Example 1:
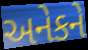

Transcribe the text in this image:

અનેકને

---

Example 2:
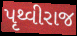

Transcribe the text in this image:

પૃથ્વીરાજ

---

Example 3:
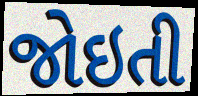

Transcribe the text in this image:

જોઇતી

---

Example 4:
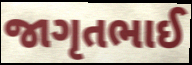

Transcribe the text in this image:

જાગૃતભાઈ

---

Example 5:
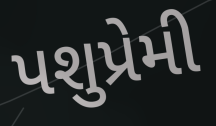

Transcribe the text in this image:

પશુપ્રેમી